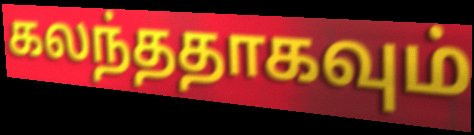
கலந்ததாகவும்